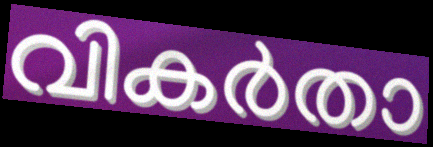
വികർതാ